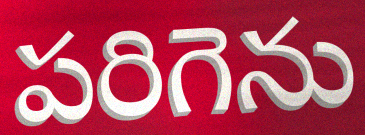
పరిగెను